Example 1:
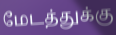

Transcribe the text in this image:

மேடத்துக்கு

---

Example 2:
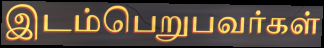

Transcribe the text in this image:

இடம்பெறுபவர்கள்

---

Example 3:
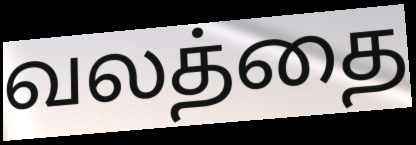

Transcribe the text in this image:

வலத்தை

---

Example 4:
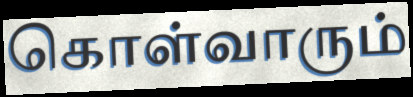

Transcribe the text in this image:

கொள்வாரும்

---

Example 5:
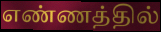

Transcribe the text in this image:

எண்ணத்தில்